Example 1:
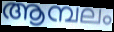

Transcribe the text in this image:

ആമ്പലം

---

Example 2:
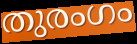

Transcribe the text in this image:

തുരംഗം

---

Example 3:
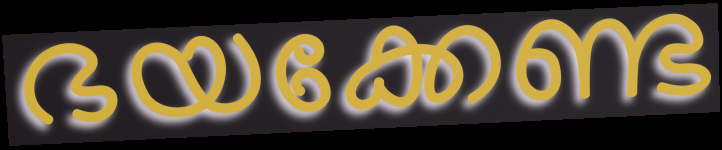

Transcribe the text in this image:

ഭയക്കേണ്ട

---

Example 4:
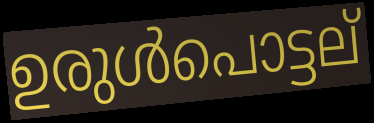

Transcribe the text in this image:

ഉരുൾപൊട്ടല്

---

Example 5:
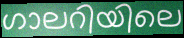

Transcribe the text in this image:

ഗാലറിയിലെ